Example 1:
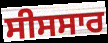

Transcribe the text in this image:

ਸੀਸਸਾਰ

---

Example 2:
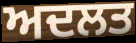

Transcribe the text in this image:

ਅਦਲਤ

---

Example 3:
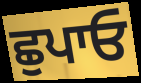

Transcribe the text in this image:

ਛੁਪਾਓ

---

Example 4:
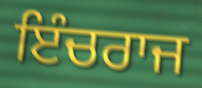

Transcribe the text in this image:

ਇੰਚਰਾਜ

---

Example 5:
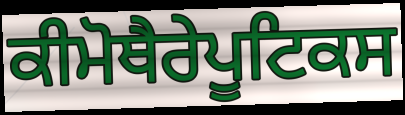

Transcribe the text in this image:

ਕੀਮੋਥੈਰੇਪੂਟਿਕਸ